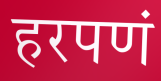
हरपणं